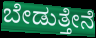
ಬೇಡುತ್ತೇನೆ